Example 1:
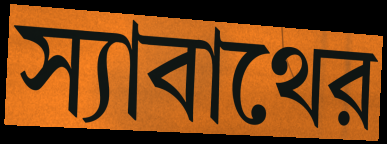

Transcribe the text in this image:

স্যাবাথের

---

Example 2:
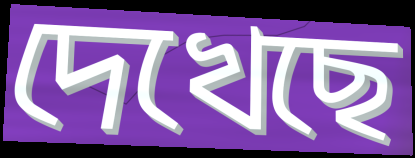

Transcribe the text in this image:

দেখেছে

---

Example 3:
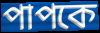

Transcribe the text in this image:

পাপকে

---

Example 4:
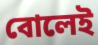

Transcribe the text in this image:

বোলেই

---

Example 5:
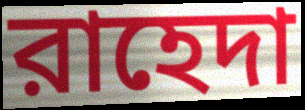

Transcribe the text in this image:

রাহেদা